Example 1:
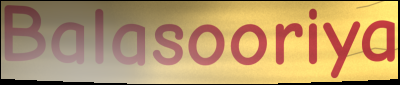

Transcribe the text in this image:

Balasooriya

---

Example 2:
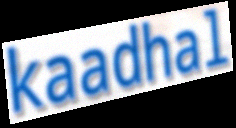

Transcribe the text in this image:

kaadhal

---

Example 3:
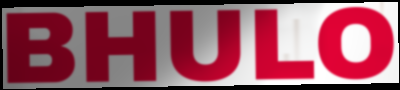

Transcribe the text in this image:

BHULO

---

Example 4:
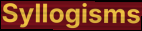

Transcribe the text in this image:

Syllogisms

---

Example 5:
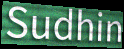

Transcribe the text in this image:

Sudhin